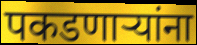
पकडणाऱ्यांना